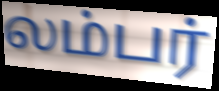
லம்பர்